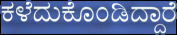
ಕಳೆದುಕೊಂಡಿದ್ದಾರೆ